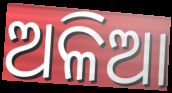
ଅଳିଆ